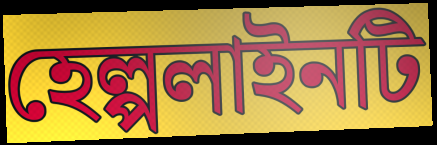
হেল্পলাইনটি